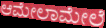
ಆಮೇಲಾಮೇಲೆ